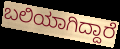
ಬಲಿಯಾಗಿದ್ದಾರೆ